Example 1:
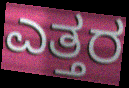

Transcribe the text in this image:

ಎತ್ತರ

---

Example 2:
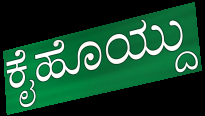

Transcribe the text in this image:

ಕೈಹೊಯ್ದು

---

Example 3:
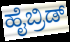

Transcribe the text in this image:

ಹೈಬ್ರಿಡ್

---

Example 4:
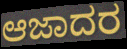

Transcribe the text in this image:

ಆಜಾದರ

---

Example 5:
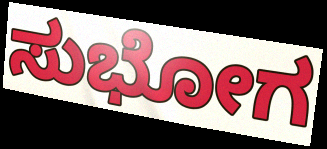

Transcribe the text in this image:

ಸುಭೋಗ